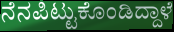
ನೆನಪಿಟ್ಟುಕೊಂಡಿದ್ದಾಳೆ